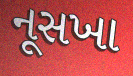
નૂસખા